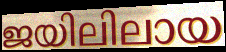
ജയിലിലായ